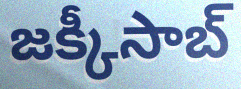
జక్కీసాబ్